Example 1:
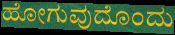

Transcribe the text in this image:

ಹೋಗುವುದೊಂದು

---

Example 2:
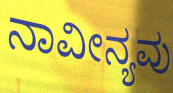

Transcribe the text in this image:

ನಾವೀನ್ಯವು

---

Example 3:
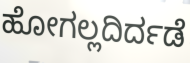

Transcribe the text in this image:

ಹೋಗಲ್ಲದಿರ್ದಡೆ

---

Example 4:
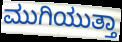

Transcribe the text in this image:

ಮುಗಿಯುತ್ತಾ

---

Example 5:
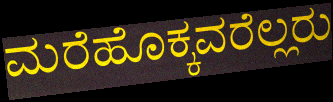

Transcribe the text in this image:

ಮರೆಹೊಕ್ಕವರೆಲ್ಲರು